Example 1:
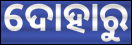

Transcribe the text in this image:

ଦୋହାରୁ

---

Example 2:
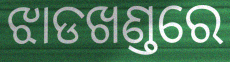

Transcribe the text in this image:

ଝାଡଖଣ୍ଡରେ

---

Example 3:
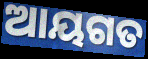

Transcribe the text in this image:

ଆୟଗତ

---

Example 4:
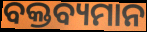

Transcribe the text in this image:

ବକ୍ତବ୍ୟମାନ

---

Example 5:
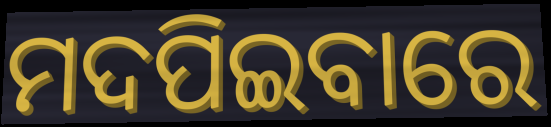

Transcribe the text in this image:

ମଦପିଇବାରେ